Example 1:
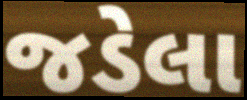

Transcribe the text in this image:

જડેલા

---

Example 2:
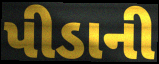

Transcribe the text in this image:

પીડાની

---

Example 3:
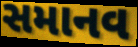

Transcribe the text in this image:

સમાનવ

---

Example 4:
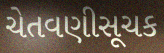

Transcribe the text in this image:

ચેતવણીસૂચક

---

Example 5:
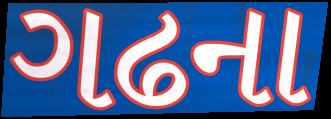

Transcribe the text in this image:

ગઢના